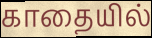
காதையில்